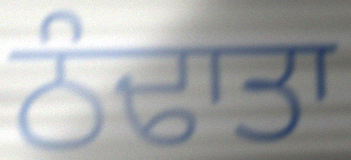
ਠੰਢਾਤਾ